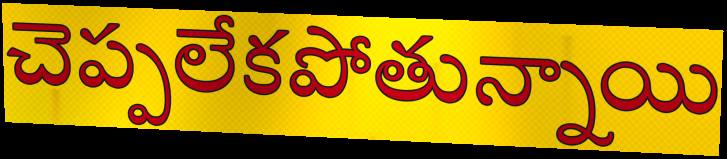
చెప్పలేకపోతున్నాయి